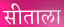
सीताला